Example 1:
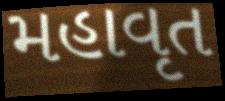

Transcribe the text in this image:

મહાવૃત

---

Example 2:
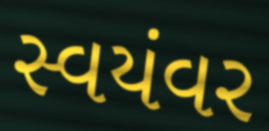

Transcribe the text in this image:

સ્વયંવર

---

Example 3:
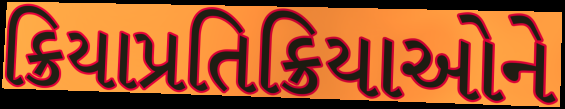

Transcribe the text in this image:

ક્રિયાપ્રતિક્રિયાઓને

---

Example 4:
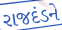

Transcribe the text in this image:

રાજદંડને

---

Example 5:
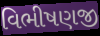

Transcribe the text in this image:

વિભીષણજી